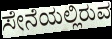
ಸೇನೆಯಲ್ಲಿರುವ